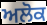
ਅਲੋਕ